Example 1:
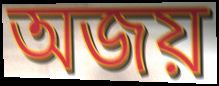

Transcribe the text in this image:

অজয়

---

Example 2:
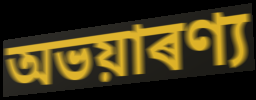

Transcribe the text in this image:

অভয়াৰণ্য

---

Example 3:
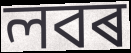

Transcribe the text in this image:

লবৰ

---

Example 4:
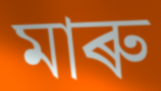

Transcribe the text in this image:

মাৰু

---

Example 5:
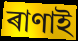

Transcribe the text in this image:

ৰাণাই